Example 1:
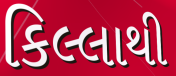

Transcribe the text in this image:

કિલ્લાથી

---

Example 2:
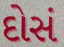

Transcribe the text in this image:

દોસં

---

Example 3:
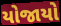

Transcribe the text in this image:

યોજાયો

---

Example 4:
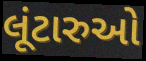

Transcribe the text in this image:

લૂંટારુઓ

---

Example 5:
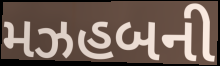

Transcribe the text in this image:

મઝહબની